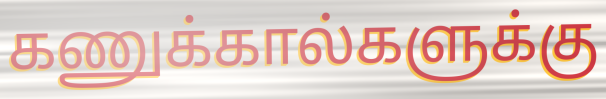
கணுக்கால்களுக்கு